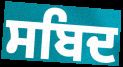
ਸਬਿਦ